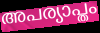
അപര്യാപ്തം